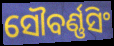
ସୌବର୍ଣ୍ଣସିଂ